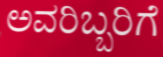
ಅವರಿಬ್ಬರಿಗೆ